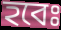
হবেঃ